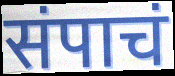
संपाचं